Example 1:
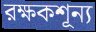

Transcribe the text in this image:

রক্ষকশূন্য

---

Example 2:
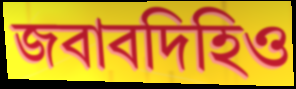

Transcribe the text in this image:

জবাবদিহিও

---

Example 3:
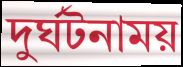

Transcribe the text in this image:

দুর্ঘটনাময়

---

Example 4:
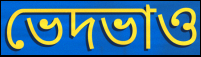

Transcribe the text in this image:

ভেদভাও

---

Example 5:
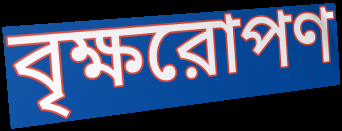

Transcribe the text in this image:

বৃক্ষরোপণ